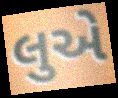
લુએ